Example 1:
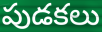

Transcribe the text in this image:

పుడకలు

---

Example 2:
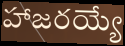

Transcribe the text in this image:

హాజరయ్యే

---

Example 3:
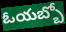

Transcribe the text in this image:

ఓయబ్బో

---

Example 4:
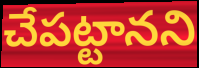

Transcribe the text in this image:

చేపట్టానని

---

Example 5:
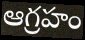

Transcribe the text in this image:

ఆగ్రహం